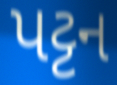
પટ્ટન